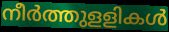
നീർത്തുളളികൾ